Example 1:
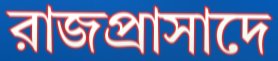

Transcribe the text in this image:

রাজপ্রাসাদে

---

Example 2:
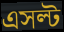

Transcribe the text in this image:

এসল্ট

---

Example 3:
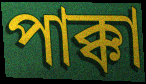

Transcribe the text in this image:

পাক্কা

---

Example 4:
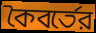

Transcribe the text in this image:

কৈবর্তের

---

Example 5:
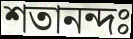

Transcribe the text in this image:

শতানন্দঃ